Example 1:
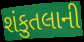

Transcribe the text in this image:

શંકુતલાની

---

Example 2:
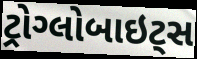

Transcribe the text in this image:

ટ્રોગ્લોબાઇટ્સ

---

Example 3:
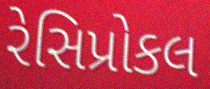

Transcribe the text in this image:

રેસિપ્રોકલ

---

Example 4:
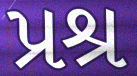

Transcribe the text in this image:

પ્રશ્ર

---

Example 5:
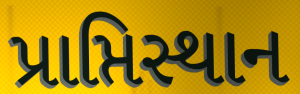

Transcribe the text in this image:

પ્રાપ્તિસ્થાન